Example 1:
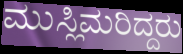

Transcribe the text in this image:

ಮುಸ್ಲಿಮರಿದ್ದರು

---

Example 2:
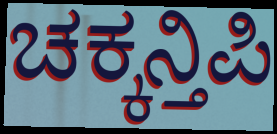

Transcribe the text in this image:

ಚಕ್ಕನ್ತಿಪಿ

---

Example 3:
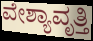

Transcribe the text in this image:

ವೇಶ್ಯಾವೃತ್ತಿ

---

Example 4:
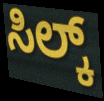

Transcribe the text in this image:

ಸಿಲ್ಕ್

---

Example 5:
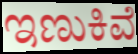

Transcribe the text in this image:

ಇಣುಕಿವೆ